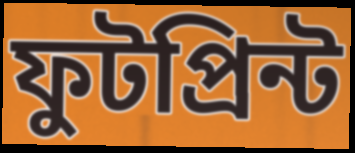
ফুটপ্রিন্ট